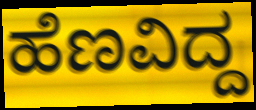
ಹೆಣವಿದ್ದ